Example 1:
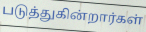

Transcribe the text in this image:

படுத்துகின்றார்கள்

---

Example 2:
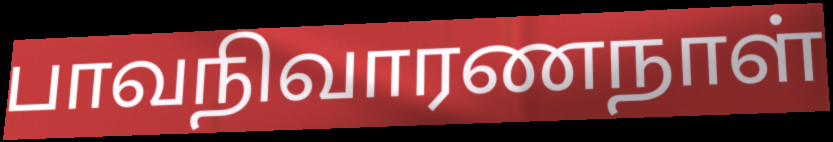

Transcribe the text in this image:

பாவநிவாரணநாள்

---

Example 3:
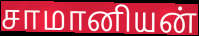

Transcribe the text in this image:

சாமானியன்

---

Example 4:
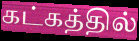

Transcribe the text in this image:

கட்கத்தில்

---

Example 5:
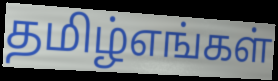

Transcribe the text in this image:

தமிழ்எங்கள்